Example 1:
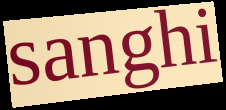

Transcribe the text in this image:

sanghi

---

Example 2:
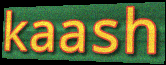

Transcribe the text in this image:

kaash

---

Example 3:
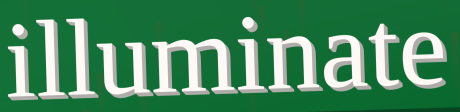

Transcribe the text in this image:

illuminate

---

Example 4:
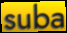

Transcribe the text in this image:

suba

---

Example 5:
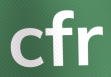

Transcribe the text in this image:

cfr